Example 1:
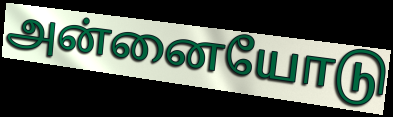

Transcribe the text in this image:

அன்னையோடு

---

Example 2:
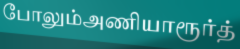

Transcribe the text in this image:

போலும்அணியாரூர்த்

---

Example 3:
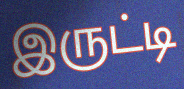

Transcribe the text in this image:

இருட்டி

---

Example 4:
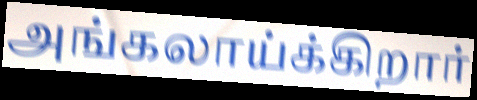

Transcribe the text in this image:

அங்கலாய்க்கிறார்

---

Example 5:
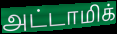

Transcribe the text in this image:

அட்டாமிக்